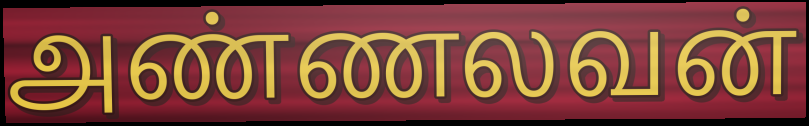
அண்ணலவன்